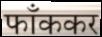
फाँककर